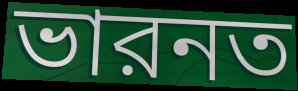
ভারনত